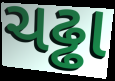
ચઢ્ઢા